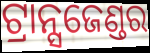
ଟ୍ରାନ୍ସଜେଣ୍ଡର